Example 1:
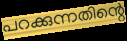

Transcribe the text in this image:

പറക്കുന്നതിന്റെ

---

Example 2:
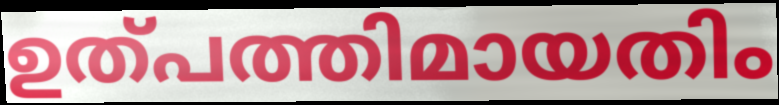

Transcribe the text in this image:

ഉത്പത്തിമായതിം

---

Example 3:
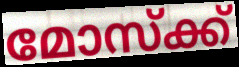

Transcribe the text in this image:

മോസ്ക്ക്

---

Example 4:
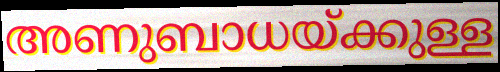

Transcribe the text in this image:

അണുബാധയ്ക്കുള്ള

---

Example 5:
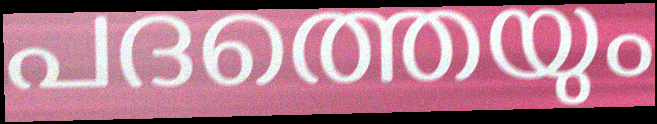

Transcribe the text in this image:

പദത്തെയും